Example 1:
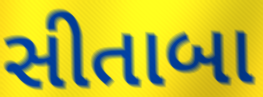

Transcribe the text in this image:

સીતાબા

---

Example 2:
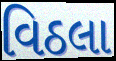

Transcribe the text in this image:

વિઠલા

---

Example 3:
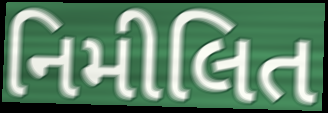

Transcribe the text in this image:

નિમીલિત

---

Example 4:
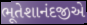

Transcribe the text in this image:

ભૂતેશાનંદજીએ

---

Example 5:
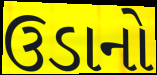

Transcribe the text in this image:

ઉડાનો